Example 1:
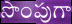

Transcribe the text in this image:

సొంపుగా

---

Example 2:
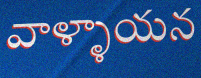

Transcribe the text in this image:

వాళ్ళాయన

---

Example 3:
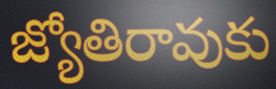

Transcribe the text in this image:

జ్యోతిరావుకు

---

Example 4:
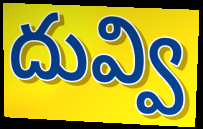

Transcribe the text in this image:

దువ్వి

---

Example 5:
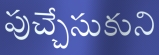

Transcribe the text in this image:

పుచ్చేసుకుని